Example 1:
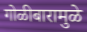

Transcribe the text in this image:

गोळीबारामुळे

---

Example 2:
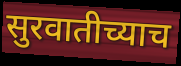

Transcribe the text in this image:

सुरवातीच्याच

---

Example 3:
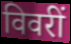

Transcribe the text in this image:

विवरीं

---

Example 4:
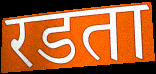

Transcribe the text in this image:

रडता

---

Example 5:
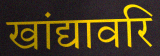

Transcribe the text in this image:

खांद्यावरि